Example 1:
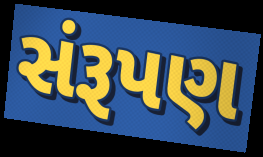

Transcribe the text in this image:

સંરૂપણ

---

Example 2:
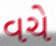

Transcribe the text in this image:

વચે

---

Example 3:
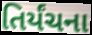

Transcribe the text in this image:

તિર્યંચના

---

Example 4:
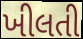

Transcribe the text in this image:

ખીલતી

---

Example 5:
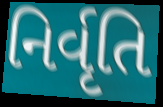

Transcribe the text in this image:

નિર્વૃતિ